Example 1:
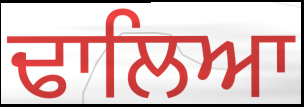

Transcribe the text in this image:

ਢਾਲਿਆ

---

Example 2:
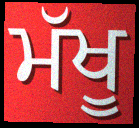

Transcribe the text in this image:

ਮੱਖੂ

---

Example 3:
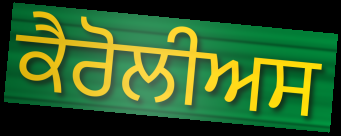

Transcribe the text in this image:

ਕੈਰੋਲੀਅਸ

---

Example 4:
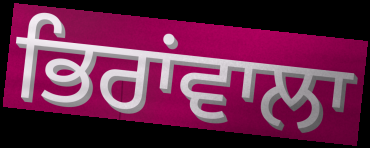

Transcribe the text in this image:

ਭਿਰਾਂਵਾਲਾ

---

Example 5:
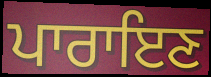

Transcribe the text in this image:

ਪਾਰਾਇਣ